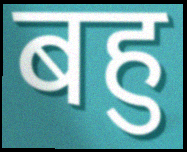
बहु